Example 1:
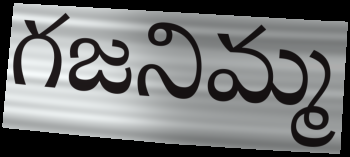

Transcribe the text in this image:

గజనిమ్మ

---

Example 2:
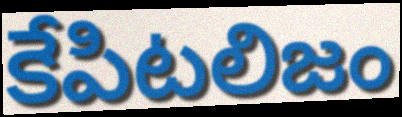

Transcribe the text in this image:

కేపిటలిజం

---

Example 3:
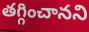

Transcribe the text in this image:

తగ్గించానని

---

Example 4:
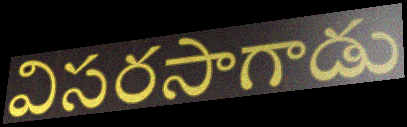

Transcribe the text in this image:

విసరసాగాడు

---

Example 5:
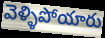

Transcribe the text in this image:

వెళ్ళిపోయారు